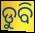
ଡୁବି